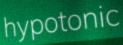
hypotonic